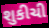
શુકીચી